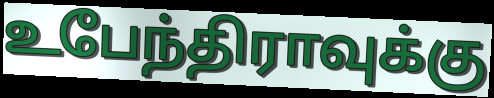
உபேந்திராவுக்கு